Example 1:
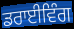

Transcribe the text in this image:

ਡਰਾਈਵਿੰਗ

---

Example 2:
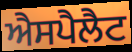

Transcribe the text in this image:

ਐਸਪੈਲੈਟ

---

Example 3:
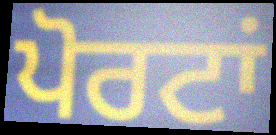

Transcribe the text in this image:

ਪੋਰਟਾਂ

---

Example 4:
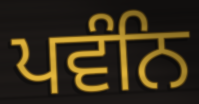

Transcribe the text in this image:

ਪਵੰਨਿ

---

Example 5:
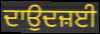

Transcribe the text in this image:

ਦਾਉਦਜ਼ਈ